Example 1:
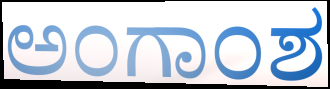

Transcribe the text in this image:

ಅಂಗಾಂಶ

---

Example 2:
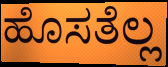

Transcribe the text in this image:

ಹೊಸತೆಲ್ಲ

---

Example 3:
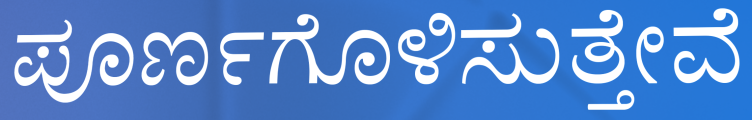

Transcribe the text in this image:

ಪೂರ್ಣಗೊಳಿಸುತ್ತೇವೆ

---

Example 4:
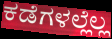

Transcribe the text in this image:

ಕಡೆಗಳಲ್ಲೆಲ್ಲ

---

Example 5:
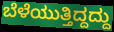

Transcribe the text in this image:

ಬೆಳೆಯುತ್ತಿದ್ದದ್ದು